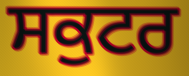
ਸਕੁਟਰ